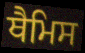
ਥੈਮਿਸ